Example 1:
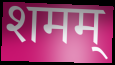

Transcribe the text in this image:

शमम्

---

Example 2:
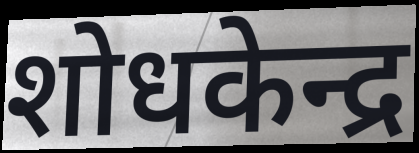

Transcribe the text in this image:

शोधकेन्द्र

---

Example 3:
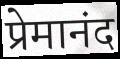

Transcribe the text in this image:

प्रेमानंद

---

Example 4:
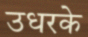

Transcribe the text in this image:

उधरके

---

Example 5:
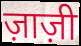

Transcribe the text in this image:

ज़ाज़ी